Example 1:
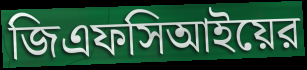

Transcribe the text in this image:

জিএফসিআইয়ের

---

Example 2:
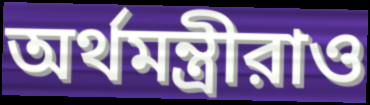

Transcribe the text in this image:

অর্থমন্ত্রীরাও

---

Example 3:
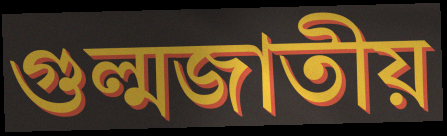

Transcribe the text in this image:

গুল্মজাতীয়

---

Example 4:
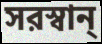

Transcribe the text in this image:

সরস্বান্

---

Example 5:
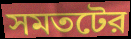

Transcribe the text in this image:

সমতটের